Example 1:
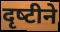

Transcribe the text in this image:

दृष्‍टीने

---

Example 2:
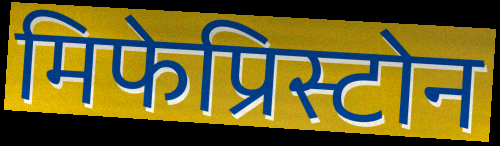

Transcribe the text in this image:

मिफेप्रिस्टोन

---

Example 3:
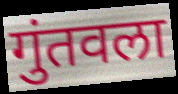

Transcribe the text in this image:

गुंतवला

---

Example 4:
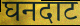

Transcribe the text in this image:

घनदाट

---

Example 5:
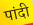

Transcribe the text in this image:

पांदी